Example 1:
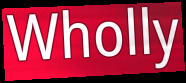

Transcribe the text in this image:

Wholly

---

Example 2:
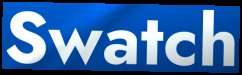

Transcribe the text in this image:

Swatch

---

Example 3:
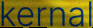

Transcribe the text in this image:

kernal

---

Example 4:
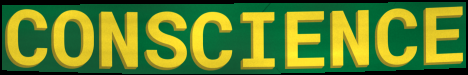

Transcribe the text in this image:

CONSCIENCE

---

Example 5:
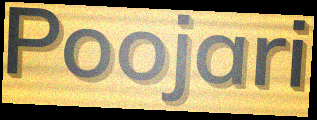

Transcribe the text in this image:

Poojari